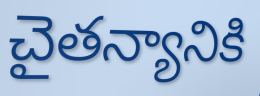
చైతన్యానికి